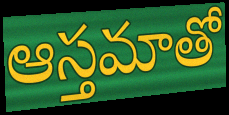
ఆస్తమాతో